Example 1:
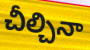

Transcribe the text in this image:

చీల్చినా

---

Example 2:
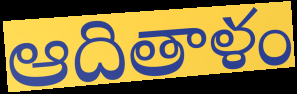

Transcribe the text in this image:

ఆదితాళం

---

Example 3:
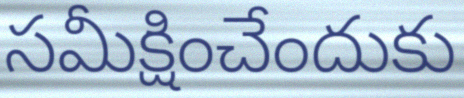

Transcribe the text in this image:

సమీక్షించేందుకు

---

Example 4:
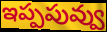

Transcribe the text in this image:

ఇప్పపువ్వు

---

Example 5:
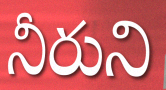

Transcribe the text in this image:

నీరుని